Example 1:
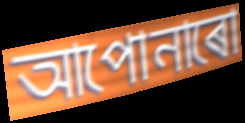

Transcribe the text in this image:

আপোনাৰো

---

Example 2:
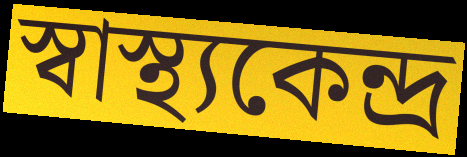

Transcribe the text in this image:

স্বাস্থ্যকেন্দ্ৰ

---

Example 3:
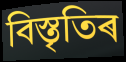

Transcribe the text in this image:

বিস্তৃতিৰ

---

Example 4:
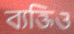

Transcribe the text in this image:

ব্যক্তিও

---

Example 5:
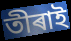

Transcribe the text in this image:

তীৰাই